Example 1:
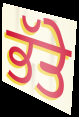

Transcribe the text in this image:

ਭੱਤੇ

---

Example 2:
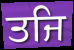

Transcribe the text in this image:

ਤਜਿ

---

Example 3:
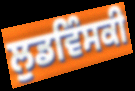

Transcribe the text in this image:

ਲੁਡਵਿੰਸਕੀ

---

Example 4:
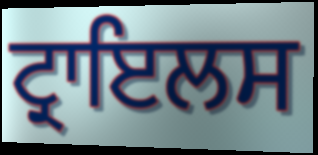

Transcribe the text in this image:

ਟ੍ਰਾਇਲਸ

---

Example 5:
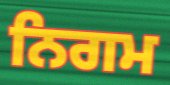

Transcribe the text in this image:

ਨਿਗਮ